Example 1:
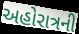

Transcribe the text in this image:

અહોરાત્રની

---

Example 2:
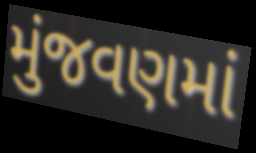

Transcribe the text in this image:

મુંજવણમાં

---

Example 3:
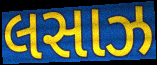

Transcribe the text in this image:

લસાઝ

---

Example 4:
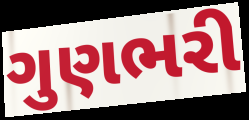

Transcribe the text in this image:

ગુણભરી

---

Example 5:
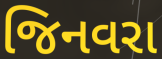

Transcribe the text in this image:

જિનવરા